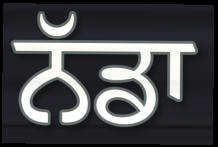
ਨੱਡਾ